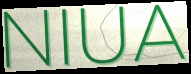
NIUA